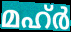
മഹ്ർ